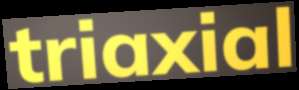
triaxial